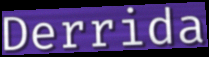
Derrida